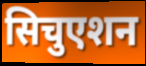
सिचुएशन